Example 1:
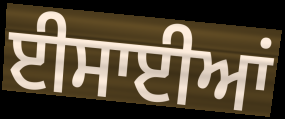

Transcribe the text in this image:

ਈਸਾਈਆਂ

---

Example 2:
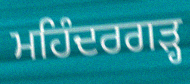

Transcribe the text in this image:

ਮਹਿੰਦਰਗੜ੍ਹ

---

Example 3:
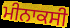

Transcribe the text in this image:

ਮੀਨਾਕਸੀ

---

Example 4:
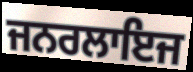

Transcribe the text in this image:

ਜਨਰਲਾਇਜ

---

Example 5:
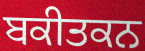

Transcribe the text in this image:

ਬਕੀਤਕਨ